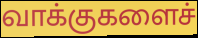
வாக்குகளைச்